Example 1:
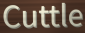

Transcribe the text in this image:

Cuttle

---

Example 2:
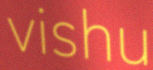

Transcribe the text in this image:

vishu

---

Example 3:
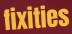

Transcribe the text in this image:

fixities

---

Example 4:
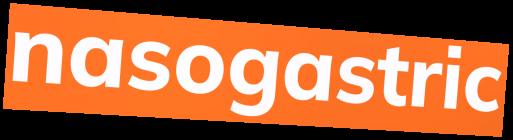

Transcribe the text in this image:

nasogastric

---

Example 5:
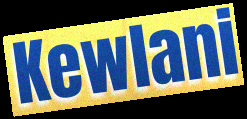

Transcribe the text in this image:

Kewlani